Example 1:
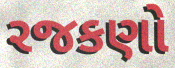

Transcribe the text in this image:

રજકણો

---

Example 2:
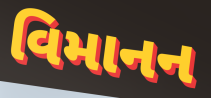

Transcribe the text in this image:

વિમાનન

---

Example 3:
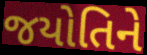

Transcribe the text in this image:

જયોતિને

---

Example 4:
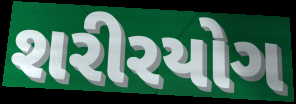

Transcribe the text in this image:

શરીરયોગ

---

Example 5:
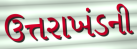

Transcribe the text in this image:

ઉત્તરાખંડની